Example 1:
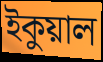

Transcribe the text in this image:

ইকুয়াল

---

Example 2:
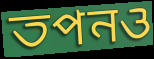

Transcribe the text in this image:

তপনও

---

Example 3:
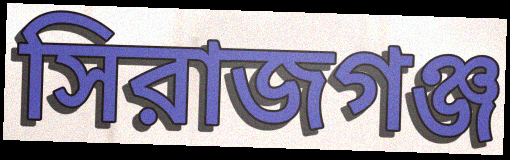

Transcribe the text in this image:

সিরাজগঞ্জ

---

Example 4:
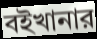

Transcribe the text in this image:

বইখানার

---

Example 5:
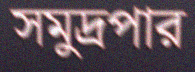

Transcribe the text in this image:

সমুদ্রপার